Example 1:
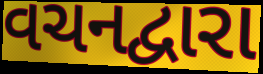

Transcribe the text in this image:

વચનદ્વારા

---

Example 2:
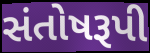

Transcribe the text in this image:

સંતોષરૂપી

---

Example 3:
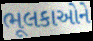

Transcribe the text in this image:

ભૂલકાઓને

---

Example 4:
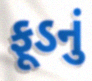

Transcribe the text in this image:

ફૂડનું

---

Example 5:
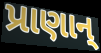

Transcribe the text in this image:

પ્રાણાન્